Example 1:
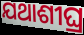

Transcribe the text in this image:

ଯଥାଶୀଘ୍ର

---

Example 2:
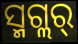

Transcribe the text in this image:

ସ୍ମଗ୍ଲର୍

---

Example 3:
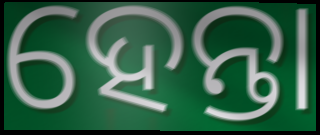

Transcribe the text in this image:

ହେନ୍ତା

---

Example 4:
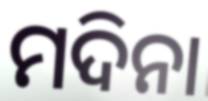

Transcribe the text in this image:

ମଦିନା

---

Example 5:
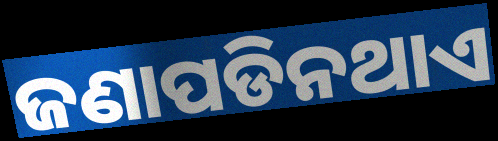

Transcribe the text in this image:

ଜଣାପଡିନଥାଏ